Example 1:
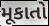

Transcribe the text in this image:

મૂકાતો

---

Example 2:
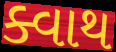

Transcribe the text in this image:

ક્વાથ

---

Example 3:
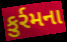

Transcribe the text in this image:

કુર્રમના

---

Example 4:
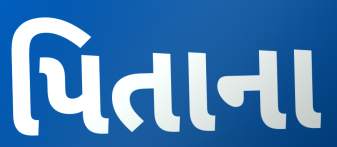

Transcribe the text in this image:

પિતાના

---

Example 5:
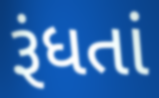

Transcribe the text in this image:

રૂંધતાં